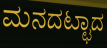
ಮನದಟ್ಟಾದ